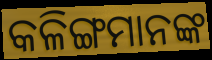
କଳିଙ୍ଗମାନଙ୍କ